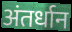
अंतर्धान